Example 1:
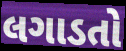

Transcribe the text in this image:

લગાડતો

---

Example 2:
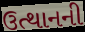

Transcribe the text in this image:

ઉત્થાનની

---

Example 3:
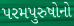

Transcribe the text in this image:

પરમપુરુષોનો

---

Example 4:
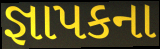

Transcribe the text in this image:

જ્ઞાપકના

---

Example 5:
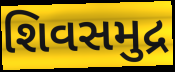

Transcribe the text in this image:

શિવસમુદ્ર